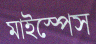
মাইস্পেস